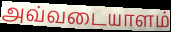
அவ்வடையாளம்